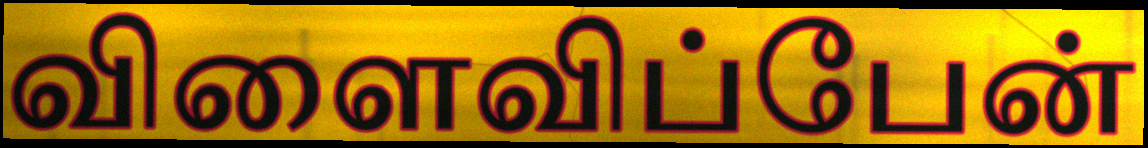
விளைவிப்பேன்